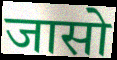
जासो